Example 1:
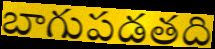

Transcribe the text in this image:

బాగుపడతది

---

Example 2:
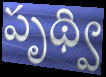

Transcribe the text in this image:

పృథ్వి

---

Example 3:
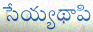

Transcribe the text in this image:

సేయ్యథాపి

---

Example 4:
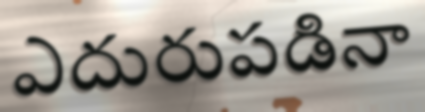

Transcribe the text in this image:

ఎదురుపడినా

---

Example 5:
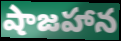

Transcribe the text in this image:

షాజహాన